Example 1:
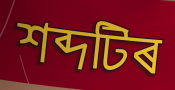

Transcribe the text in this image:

শব্দটিৰ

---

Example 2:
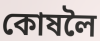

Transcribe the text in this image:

কোষলৈ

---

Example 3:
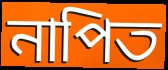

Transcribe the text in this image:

নাপিত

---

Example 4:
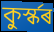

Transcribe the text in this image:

কুৰ্স্কৰ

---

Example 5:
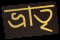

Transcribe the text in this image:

ভ্ৰাতৃ